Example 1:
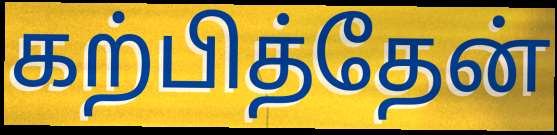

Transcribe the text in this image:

கற்பித்தேன்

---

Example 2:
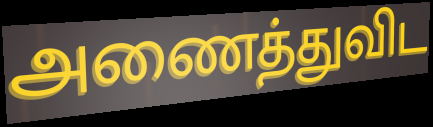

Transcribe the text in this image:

அணைத்துவிட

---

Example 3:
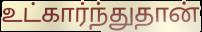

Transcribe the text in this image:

உட்கார்ந்துதான்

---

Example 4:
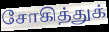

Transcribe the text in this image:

சோகித்துக்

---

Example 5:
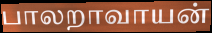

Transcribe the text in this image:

பாலறாவாயன்